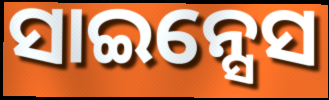
ସାଇନ୍ସେସ